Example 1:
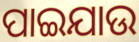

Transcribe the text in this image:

ପାଇଯାଉ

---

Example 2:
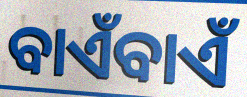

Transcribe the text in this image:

ବାଏଁବାଏଁ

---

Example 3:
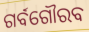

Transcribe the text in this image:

ଗର୍ବଗୌରବ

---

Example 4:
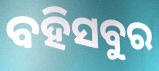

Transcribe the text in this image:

ବହିସବୁର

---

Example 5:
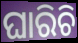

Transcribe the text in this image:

ଘାରିଚି